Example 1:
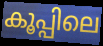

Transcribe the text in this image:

കൂപ്പിലെ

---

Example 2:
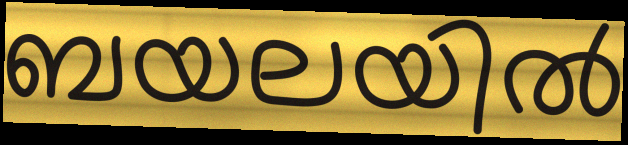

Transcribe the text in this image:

ബയലയിൽ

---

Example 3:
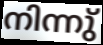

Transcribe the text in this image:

നിന്നു്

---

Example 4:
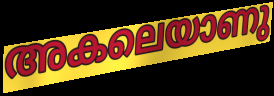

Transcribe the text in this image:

അകലെയാണു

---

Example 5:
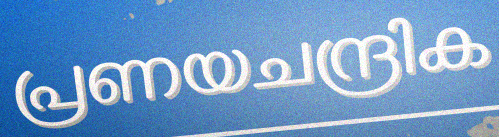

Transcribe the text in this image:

പ്രണയചന്ദ്രിക